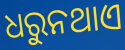
ଧରୁନଥାଏ